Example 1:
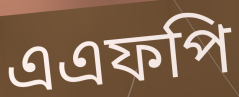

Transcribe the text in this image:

এএফপি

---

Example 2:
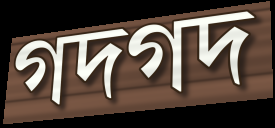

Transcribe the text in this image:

গদগদ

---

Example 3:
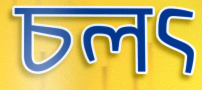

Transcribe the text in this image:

চলৎ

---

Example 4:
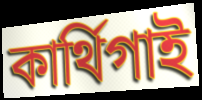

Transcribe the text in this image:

কার্থিগাই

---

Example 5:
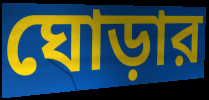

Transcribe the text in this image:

ঘোড়ার